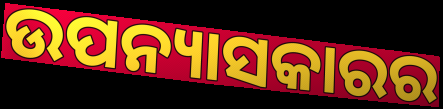
ଉପନ୍ୟାସକାରର